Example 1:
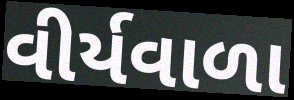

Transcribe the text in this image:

વીર્યવાળા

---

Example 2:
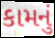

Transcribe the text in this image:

કામનું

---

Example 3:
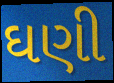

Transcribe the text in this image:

ઘણી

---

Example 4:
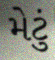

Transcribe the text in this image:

મેટું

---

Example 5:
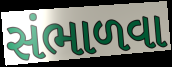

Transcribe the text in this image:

સંભાળવા